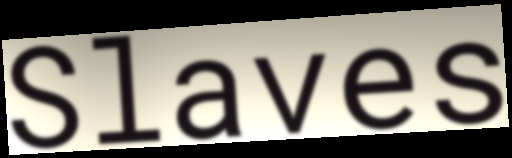
Slaves